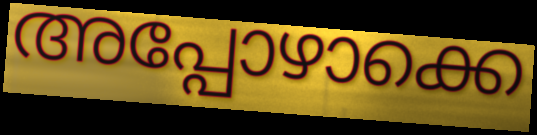
അപ്പോഴാക്കെ